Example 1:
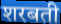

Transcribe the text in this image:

शरबती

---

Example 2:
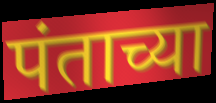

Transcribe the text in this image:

पंताच्या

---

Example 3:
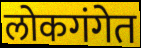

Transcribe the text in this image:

लोकगंगेत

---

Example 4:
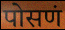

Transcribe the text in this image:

पोसणं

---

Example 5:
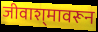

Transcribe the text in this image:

जीवाश्मावरून